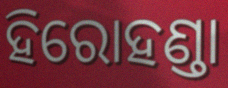
ହିରୋହଣ୍ଡା